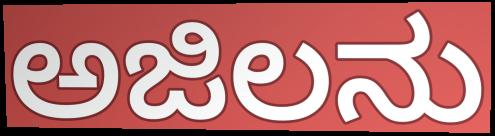
ಅಜಿಲನು